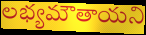
లభ్యమౌతాయని